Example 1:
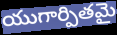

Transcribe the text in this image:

యుగార్పితమై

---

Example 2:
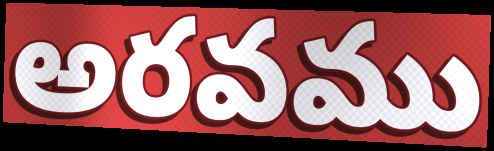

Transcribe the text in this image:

అరవము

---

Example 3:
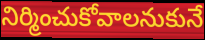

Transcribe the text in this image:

నిర్మించుకోవాలనుకునే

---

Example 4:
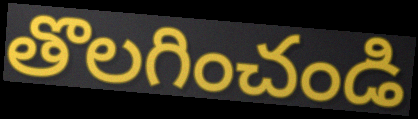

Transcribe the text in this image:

తొలగించండి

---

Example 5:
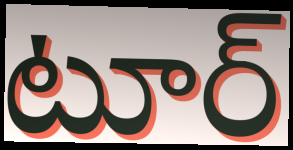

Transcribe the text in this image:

టూర్